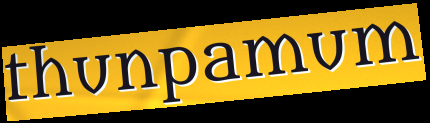
thunpamum